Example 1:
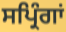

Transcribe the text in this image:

ਸਪ੍ਰਿੰਗਾਂ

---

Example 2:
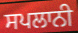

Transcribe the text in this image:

ਸਪਲਾਨੀ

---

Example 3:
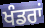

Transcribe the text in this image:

ਖੰਡਰਾਂ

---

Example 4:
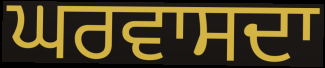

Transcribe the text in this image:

ਘਰਵਾਸਦਾ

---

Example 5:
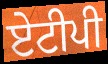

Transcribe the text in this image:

ਏਟੀਪੀ